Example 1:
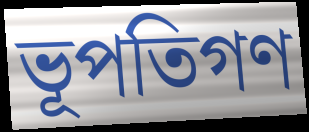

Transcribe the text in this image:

ভূপতিগণ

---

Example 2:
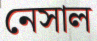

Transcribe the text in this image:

নেসাল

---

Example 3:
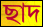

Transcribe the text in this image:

ছাদ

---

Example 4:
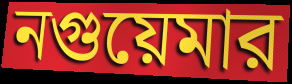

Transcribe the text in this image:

নগুয়েমার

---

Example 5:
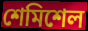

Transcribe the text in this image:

শেমিশেল